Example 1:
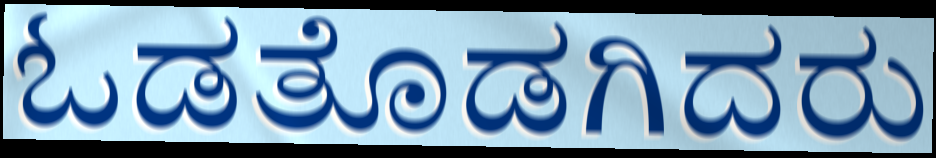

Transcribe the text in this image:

ಓಡತೊಡಗಿದರು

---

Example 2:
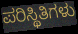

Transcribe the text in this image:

ಪರಿಸ್ಥಿತಿಗಳು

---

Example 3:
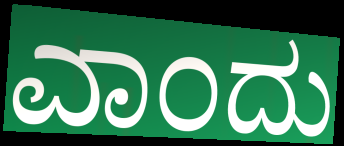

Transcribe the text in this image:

ಎಾಂದು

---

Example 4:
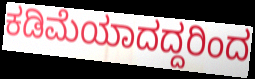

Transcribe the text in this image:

ಕಡಿಮೆಯಾದದ್ದರಿಂದ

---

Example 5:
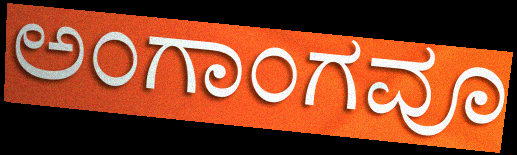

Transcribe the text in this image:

ಅಂಗಾಂಗವೂ